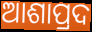
ଆଶାପ୍ରଦ